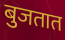
बुजतात